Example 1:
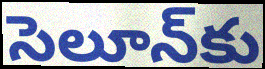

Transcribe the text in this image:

సెలూన్‌కు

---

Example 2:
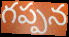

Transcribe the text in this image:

గప్పన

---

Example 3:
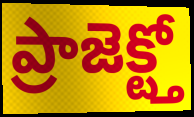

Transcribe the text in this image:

ప్రాజెక్ట్తో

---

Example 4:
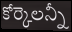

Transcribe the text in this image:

కోర్కెలన్నీ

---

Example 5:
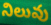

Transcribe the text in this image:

నిలువు